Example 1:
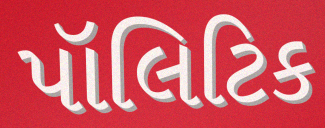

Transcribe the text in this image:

પૉલિટિક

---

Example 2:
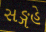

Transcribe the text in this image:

સઙ્ગહે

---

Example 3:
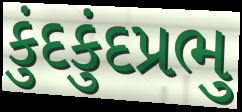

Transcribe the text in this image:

કુંદકુંદપ્રભુ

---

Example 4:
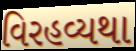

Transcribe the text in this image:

વિરહવ્યથા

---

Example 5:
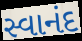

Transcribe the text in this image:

સ્વાનંદ